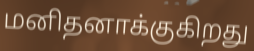
மனிதனாக்குகிறது